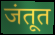
जंतूत